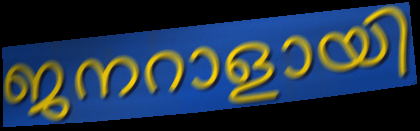
ജനറാളായി